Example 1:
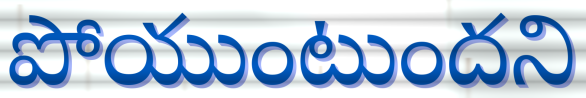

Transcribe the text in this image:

పోయుంటుందని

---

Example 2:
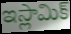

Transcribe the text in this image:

ఇస్లామిక్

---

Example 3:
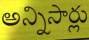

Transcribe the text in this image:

అన్నిసార్లు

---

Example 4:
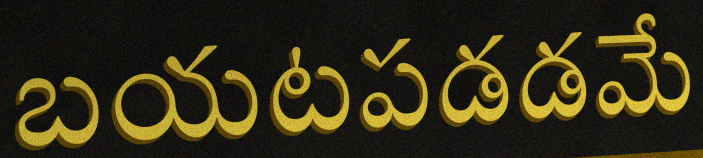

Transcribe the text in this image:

బయటపడడమే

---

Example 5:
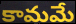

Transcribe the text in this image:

కామమే